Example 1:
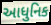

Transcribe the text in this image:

આધુનિક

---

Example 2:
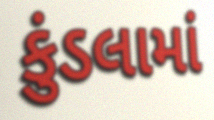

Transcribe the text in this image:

કુંડલામાં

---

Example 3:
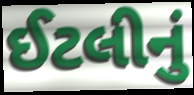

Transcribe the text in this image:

ઈટલીનું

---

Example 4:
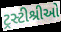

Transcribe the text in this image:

ટ્રસ્ટીશ્રીઓ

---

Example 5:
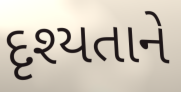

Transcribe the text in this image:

દૃશ્યતાને